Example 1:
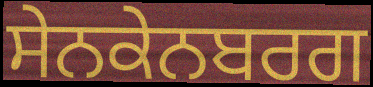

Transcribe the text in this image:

ਸੇਨਕੇਨਬਰਗ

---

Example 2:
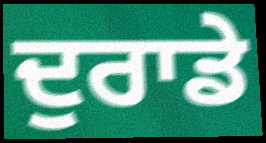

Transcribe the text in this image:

ਦੁਰਾਡੇ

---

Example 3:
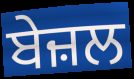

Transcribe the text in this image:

ਬੇਜ਼ਲ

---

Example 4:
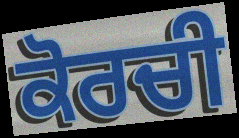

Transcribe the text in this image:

ਕੋਰਚੀ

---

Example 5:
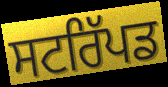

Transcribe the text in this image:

ਸਟਰਿੱਪਡ